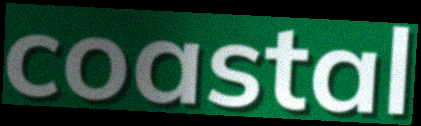
coastal